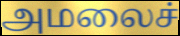
அமலைச்